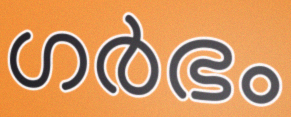
ഗർഭം